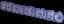
ತರವಾಡುಮನೆಲಿ